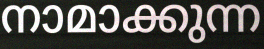
നാമാക്കുന്ന